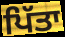
ਪਿੱਤਾ